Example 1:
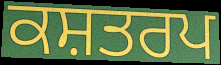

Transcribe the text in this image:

ਕਸ਼ਤਰਪ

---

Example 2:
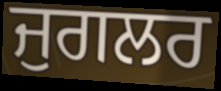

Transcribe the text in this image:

ਜੁਗਲਰ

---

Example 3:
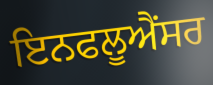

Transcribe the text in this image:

ਇਨਫਲੂਐਂਸਰ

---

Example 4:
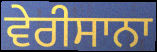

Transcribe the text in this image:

ਵੇਰੀਸਾਨਾ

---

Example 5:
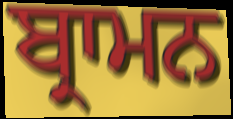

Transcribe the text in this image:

ਬ੍ਰਾਮਨ